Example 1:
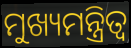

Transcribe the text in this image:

ମୁଖ୍ୟମନ୍ତ୍ରିତ୍ୱ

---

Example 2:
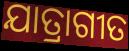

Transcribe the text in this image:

ଯାତ୍ରାଗୀତ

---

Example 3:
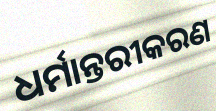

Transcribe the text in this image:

ଧର୍ମାନ୍ତରୀକରଣ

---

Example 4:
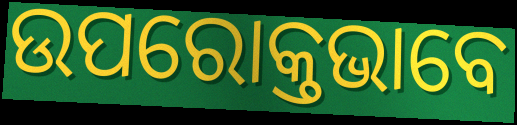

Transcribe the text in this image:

ଉପରୋକ୍ତଭାବେ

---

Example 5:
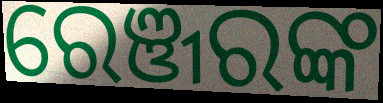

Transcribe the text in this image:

ରେଞ୍ଜରଙ୍କ